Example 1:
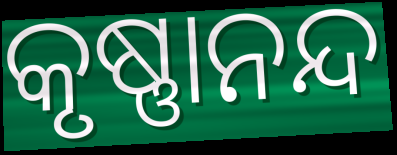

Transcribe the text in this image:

କୃଷ୍ଣାନନ୍ଦ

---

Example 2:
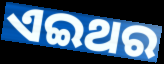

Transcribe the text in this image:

ଏଇଥର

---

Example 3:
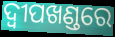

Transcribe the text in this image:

ଦ୍ଵୀପଖଣ୍ଡରେ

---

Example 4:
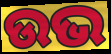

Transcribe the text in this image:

ଉଭ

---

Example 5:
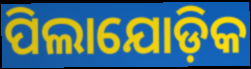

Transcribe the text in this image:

ପିଲାଯୋଡ଼ିକ